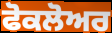
ਫੋਕਲੋਅਰ